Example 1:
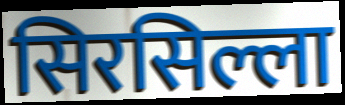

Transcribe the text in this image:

सिरसिल्ला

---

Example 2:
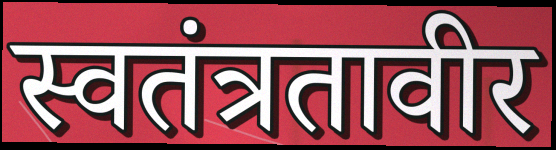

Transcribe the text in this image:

स्वतंत्रतावीर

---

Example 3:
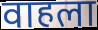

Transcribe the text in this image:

वाहला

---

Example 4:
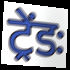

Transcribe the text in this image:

ट्रेंडः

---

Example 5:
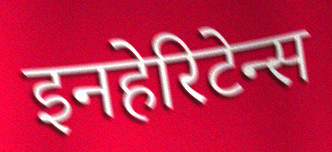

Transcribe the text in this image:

इनहेरिटेन्स